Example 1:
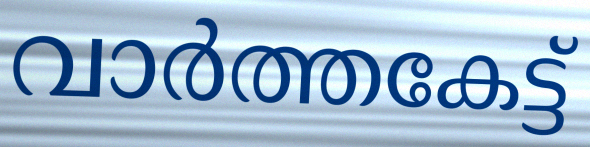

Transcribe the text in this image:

വാർത്തകേട്ട്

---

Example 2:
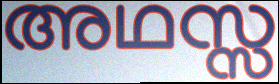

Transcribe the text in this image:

അഥസ്സ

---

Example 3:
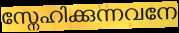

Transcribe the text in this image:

സ്നേഹിക്കുന്നവനേ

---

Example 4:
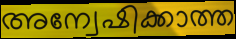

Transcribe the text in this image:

അന്വേഷിക്കാത്ത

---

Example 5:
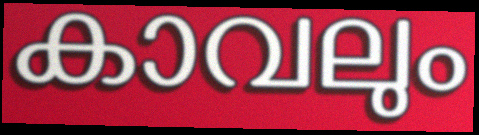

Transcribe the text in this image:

കാവലും